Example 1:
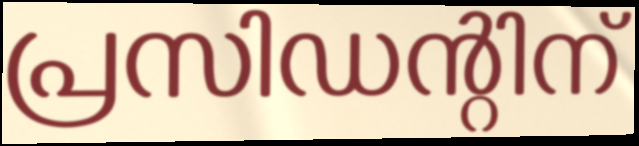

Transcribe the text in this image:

പ്രസിഡന്റിന്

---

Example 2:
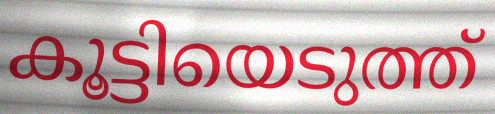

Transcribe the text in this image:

കൂട്ടിയെടുത്ത്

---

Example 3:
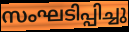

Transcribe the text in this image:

സംഘടിപ്പിച്ചു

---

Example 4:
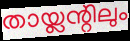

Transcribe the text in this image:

തായ്ലന്റിലും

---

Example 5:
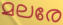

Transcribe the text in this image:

മലരേ